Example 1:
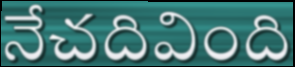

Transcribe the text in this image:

నేచదివింది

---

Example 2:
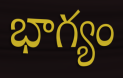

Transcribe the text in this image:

భాగ్యం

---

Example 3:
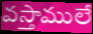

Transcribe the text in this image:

వస్తాములే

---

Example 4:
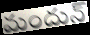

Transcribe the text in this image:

మందున్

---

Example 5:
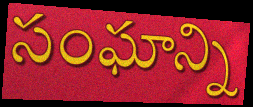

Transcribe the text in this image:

సంఘాన్ని